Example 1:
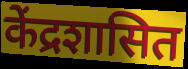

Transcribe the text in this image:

केंद्रशासित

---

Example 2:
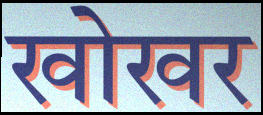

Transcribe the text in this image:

खोखर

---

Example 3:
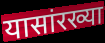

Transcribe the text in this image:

यासांरख्या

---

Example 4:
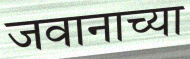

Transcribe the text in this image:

जवानाच्या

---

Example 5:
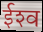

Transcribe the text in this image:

ईश्व